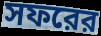
সফরের